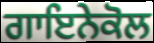
ਗਾਇਨੇਕੋਲ